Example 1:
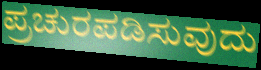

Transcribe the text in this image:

ಪ್ರಚುರಪಡಿಸುವುದು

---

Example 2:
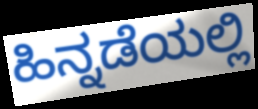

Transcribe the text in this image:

ಹಿನ್ನಡೆಯಲ್ಲಿ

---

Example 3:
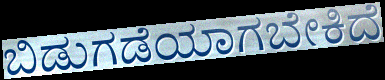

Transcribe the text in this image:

ಬಿಡುಗಡೆಯಾಗಬೇಕಿದೆ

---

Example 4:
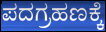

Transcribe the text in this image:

ಪದಗ್ರಹಣಕ್ಕೆ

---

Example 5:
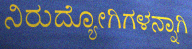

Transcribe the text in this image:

ನಿರುದ್ಯೋಗಿಗಳನ್ನಾಗಿ